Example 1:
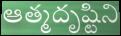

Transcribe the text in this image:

ఆత్మదృష్టిని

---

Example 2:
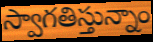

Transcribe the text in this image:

స్వాగతిస్తున్నాం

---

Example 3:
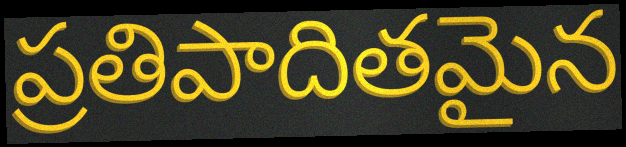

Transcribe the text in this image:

ప్రతిపాదితమైన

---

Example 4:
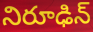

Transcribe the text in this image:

నిరూఢిన్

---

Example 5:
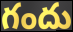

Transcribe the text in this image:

గందు